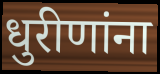
धुरीणांना